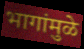
भागांमुळे